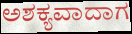
ಅಶಕ್ಯವಾದಾಗ